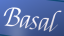
Basal